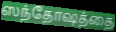
ஸந்தோஷத்தை